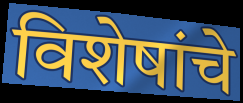
विशेषांचे